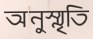
অনুস্মৃতি